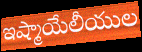
ఇష్మాయేలీయుల